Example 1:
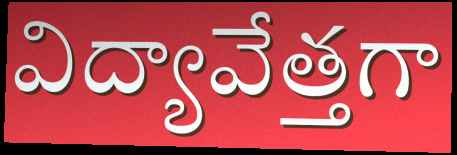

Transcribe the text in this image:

విద్యావేత్తగా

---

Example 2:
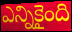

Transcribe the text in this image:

ఎన్నికైంది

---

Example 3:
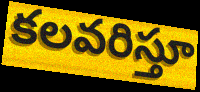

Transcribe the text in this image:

కలవరిస్తూ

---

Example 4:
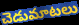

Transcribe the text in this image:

చెడుమాటలు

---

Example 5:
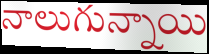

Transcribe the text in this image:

నాలుగున్నాయి